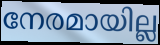
നേരമായില്ല